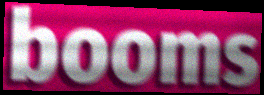
booms